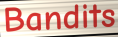
Bandits